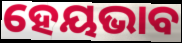
ହେୟଭାବ